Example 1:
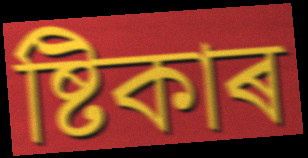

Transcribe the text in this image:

ষ্টিকাৰ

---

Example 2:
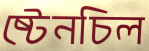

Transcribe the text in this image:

ষ্টেনচিল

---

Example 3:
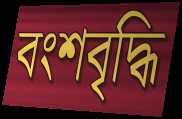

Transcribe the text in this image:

বংশবৃদ্ধি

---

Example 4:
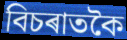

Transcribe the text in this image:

বিচৰাতকৈ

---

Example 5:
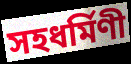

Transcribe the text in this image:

সহধৰ্মিণী